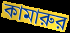
কামারুর